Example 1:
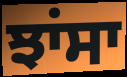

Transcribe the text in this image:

ਝਾਂਸਾ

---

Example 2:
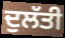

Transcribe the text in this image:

ਦੁਲੱਤੀ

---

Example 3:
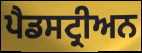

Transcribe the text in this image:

ਪੈਡਸਟ੍ਰੀਅਨ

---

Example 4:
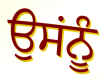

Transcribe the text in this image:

ਉਸਂਨੂੰ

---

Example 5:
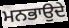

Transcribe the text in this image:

ਮਨਭਾਉਦੇ